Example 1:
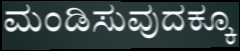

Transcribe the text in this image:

ಮಂಡಿಸುವುದಕ್ಕೂ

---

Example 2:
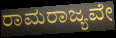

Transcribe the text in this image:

ರಾಮರಾಜ್ಯವೇ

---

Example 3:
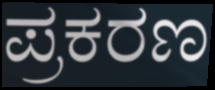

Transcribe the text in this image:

ಪ್ರಕರಣ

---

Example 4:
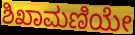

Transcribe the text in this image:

ಶಿಖಾಮಣಿಯೇ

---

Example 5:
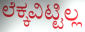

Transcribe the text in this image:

ಲೆಕ್ಕವಿಟ್ಟಿಲ್ಲ